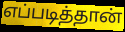
எப்படித்தான்